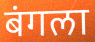
बंगला